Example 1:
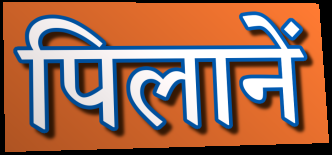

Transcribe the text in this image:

पिलानें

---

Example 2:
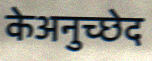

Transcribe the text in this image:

केअनुच्छेद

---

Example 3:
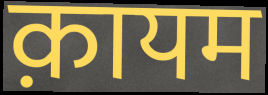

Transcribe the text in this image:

क़ायम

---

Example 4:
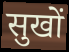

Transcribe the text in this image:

सुखों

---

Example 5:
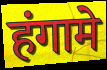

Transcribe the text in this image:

हंगामे